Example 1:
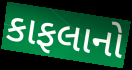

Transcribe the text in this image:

કાફલાનો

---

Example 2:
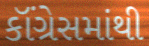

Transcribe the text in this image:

કૉંગ્રેસમાંથી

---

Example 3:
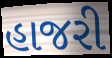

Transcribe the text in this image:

હાજરી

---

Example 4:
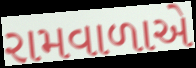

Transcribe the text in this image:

રામવાળાએ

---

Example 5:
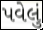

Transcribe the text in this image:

પવેલું